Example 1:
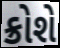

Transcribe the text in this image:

ક્રોશે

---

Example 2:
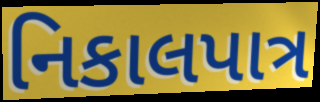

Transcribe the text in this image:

નિકાલપાત્ર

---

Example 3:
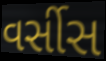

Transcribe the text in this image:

વર્સીસ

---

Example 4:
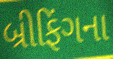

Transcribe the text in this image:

બ્રીફિંગના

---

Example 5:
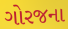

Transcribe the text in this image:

ગોરજના